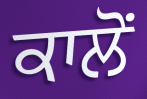
ਕਾਲੋਂ